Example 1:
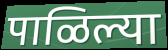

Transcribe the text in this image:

पाळिल्या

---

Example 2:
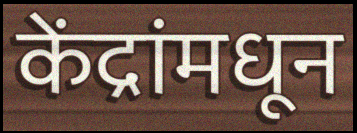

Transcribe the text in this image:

केंद्रांमधून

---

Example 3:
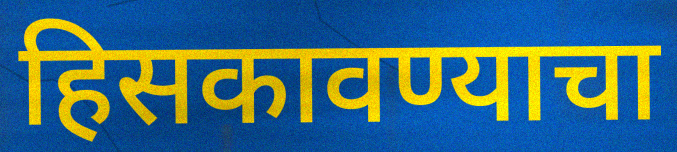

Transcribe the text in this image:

हिसकावण्याचा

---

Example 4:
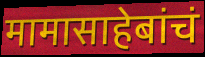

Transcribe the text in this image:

मामासाहेबांचं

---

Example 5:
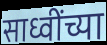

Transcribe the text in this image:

साध्वींच्या